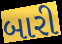
બારી